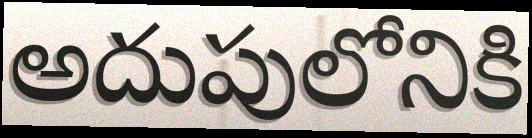
అదుపులోనికి